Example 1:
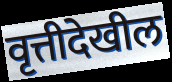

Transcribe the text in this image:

वृत्तीदेखील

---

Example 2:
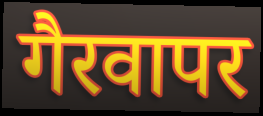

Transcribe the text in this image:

गैरवापर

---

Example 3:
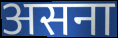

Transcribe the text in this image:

असना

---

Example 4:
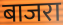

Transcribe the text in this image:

बाजरा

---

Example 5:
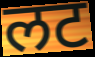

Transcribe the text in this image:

लट